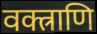
वक्त्राणि